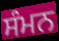
ਸੰਮਨ